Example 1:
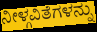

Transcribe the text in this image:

ನೀಳ್ಗವಿತೆಗಳನ್ನು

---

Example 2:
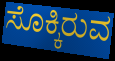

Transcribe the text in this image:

ಸೊಕ್ಕಿರುವ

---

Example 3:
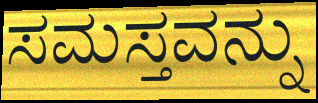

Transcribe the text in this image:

ಸಮಸ್ತವನ್ನು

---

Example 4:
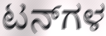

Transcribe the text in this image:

ಟನ್‌ಗಳ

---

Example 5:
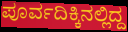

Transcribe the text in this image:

ಪೂರ್ವದಿಕ್ಕಿನಲ್ಲಿದ್ದ